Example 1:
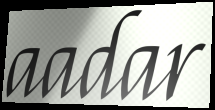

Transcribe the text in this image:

aadar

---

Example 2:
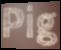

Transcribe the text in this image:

Pig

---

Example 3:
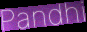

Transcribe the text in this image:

Pandhi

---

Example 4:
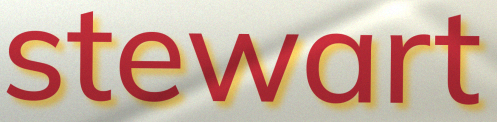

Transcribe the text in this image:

stewart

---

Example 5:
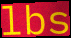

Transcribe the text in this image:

lbs